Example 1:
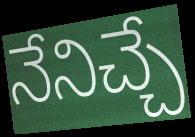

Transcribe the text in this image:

నేనిచ్చే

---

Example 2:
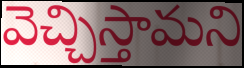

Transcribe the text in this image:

వెచ్చిస్తామని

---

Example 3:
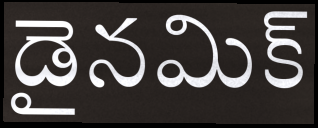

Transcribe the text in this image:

డైనమిక్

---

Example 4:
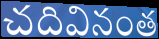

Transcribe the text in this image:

చదివినంత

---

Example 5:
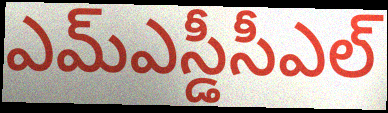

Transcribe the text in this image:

ఎమ్ఎస్డీసీఎల్